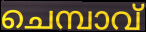
ചെമ്പാവ്